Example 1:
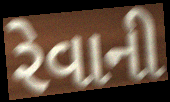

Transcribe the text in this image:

રેવાની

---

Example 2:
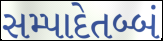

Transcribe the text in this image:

સમ્પાદેતબ્બં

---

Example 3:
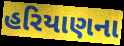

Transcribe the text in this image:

હરિયાણના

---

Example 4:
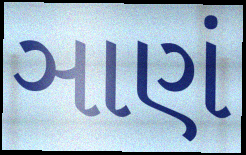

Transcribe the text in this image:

ઞાણં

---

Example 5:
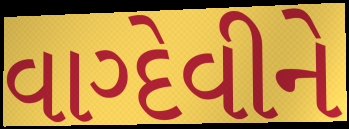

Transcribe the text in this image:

વાગ્દેવીને